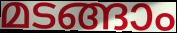
മടങ്ങാം